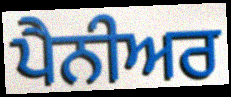
ਪੈਨੀਅਰ